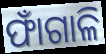
ଫାଁଗାଳି